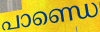
പാണ്ഡെ